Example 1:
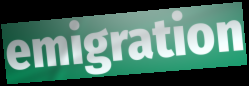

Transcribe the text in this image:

emigration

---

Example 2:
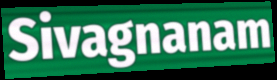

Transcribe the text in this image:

Sivagnanam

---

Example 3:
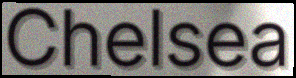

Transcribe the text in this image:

Chelsea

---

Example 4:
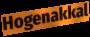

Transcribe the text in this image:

Hogenakkal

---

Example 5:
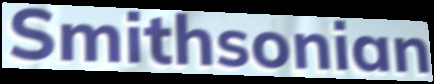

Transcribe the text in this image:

Smithsonian